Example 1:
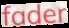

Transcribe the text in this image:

fader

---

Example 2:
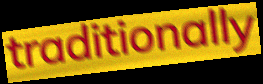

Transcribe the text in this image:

traditionally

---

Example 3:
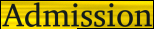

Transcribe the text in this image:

Admission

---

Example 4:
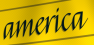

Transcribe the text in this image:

america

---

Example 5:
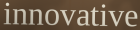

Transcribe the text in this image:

innovative